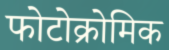
फोटोक्रोमिक